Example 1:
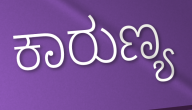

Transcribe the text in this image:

ಕಾರುಣ್ಯ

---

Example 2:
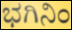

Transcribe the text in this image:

ಭಗಿನಿಂ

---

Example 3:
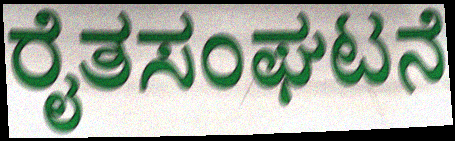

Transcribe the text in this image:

ರೈತಸಂಘಟನೆ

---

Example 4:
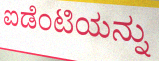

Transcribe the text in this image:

ಐಡೆಂಟಿಯನ್ನು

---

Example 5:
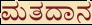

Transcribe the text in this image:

ಮತದಾನ